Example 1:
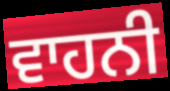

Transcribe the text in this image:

ਵਾਹਨੀ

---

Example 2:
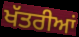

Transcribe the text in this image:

ਖੱਤਰੀਆਂ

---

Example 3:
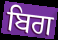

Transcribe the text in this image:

ਬਿਗ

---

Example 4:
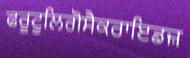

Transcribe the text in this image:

ਫਰੂਟੂਲਿਗੋਸੈਕਰਾਇਡਜ਼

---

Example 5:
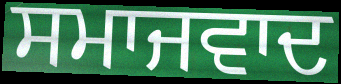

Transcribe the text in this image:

ਸਮਾਜਵਾਦ